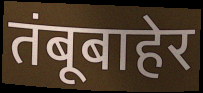
तंबूबाहेर